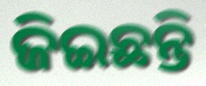
ଜିଇଛନ୍ତି